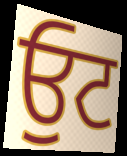
ਓੁਟ